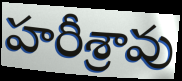
హరీశ్రావు